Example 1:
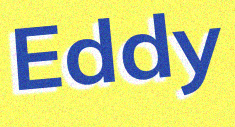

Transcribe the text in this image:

Eddy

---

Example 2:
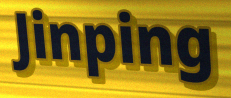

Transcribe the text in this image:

Jinping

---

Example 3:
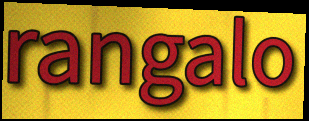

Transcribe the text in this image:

rangalo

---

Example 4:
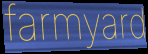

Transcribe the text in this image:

farmyard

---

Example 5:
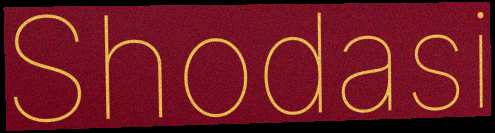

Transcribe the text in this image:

Shodasi